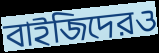
বাইজিদেরও